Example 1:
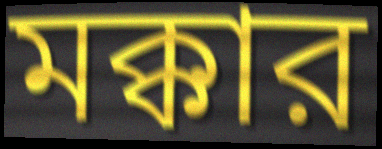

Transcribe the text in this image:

মক্কার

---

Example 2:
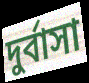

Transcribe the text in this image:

দুর্বাসা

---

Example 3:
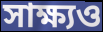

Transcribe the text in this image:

সাক্ষ্যও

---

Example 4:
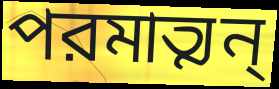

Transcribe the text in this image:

পরমাত্মন্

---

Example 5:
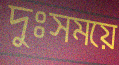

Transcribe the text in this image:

দুঃসময়ে